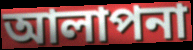
আলাপনা